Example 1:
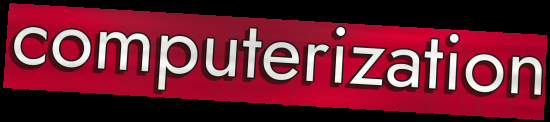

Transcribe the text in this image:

computerization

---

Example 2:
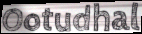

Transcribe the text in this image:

Ootudhal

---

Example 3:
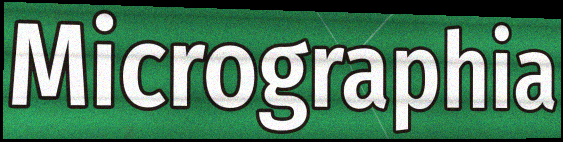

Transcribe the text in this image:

Micrographia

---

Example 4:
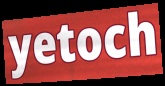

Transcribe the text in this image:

yetoch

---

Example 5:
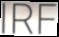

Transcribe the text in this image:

IRF